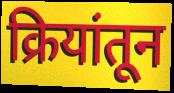
क्रियांतून